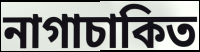
নাগাচাকিত